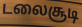
டலைசூடி